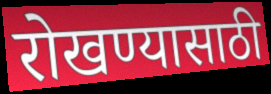
रोखण्यासाठी